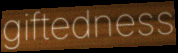
giftedness